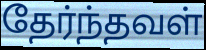
தேர்ந்தவள்